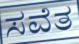
ಸವೆತ